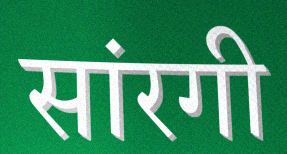
सांरगी